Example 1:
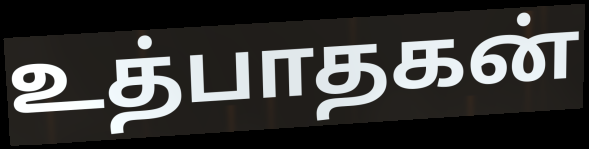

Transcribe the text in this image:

உத்பாதகன்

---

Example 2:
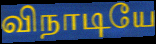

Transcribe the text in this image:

விநாடியே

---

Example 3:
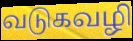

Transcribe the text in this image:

வடுகவழி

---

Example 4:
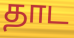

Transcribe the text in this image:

தாட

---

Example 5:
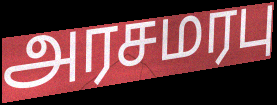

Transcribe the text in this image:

அரசமரபு